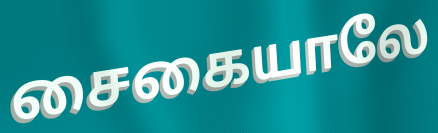
சைகையாலே